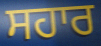
ਸਹਾਰ